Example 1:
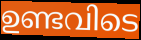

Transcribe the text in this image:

ഉണ്ടവിടെ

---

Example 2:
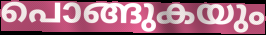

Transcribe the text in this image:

പൊങ്ങുകയും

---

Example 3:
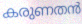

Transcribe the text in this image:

കരുണതൻ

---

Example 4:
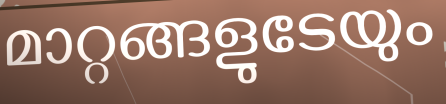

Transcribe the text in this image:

മാറ്റങ്ങളുടേയും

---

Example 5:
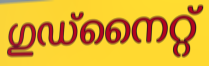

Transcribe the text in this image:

ഗുഡ്നൈറ്റ്